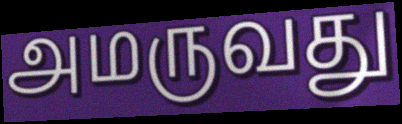
அமருவது